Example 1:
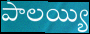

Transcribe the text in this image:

పాలయ్యి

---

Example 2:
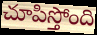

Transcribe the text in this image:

చూపిస్తోంది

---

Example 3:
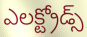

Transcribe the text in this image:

ఎలక్ట్రోడ్స్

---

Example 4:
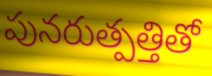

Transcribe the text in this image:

పునరుత్పత్తితో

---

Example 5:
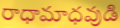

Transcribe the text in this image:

రాధామాధవుడి